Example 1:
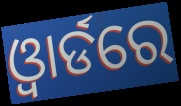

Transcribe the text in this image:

ଓ୍ବାର୍ଡରେ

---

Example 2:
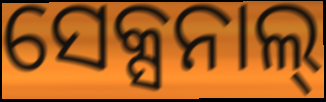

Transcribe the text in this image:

ସେକ୍ସନାଲ୍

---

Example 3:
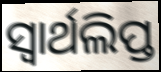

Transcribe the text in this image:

ସ୍ୱାର୍ଥଲିପ୍ତ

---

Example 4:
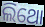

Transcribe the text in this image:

ଲିଥୋ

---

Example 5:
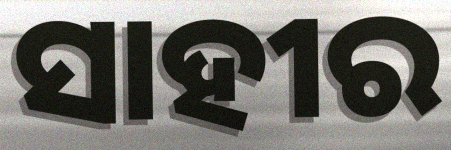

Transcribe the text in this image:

ସାହୀର